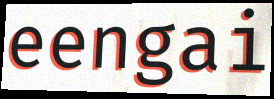
eengai